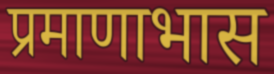
प्रमाणाभास